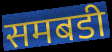
समबडी